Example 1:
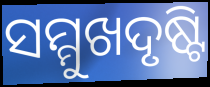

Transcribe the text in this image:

ସମ୍ମୁଖଦୃଷ୍ଟି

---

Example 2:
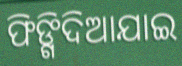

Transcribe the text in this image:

ଫିଙ୍ଗିଦିଆଯାଇ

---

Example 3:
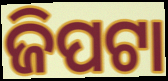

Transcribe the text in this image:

ଜିପଟା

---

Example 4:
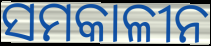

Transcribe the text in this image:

ସମକାଳୀନ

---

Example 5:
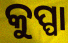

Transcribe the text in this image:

କୁପ୍ପା